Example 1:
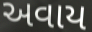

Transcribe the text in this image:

અવાય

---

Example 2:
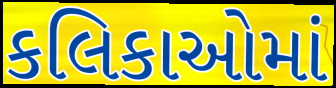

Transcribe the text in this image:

કલિકાઓમાં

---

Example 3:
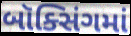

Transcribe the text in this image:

બૉક્સિંગમાં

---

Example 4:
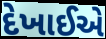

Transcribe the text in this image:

દેખાઈએ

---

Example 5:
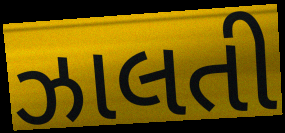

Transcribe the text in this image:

ઝાલતી